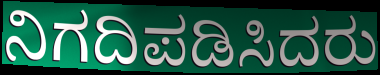
ನಿಗದಿಪಡಿಸಿದರು